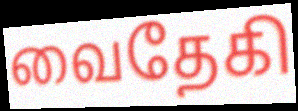
வைதேகி